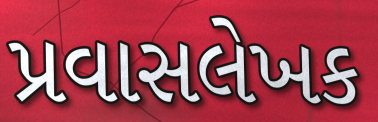
પ્રવાસલેખક